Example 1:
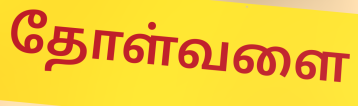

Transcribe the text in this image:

தோள்வளை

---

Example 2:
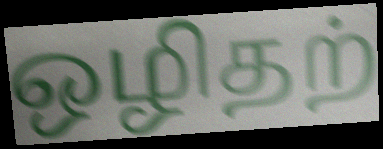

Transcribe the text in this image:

ஒழிதற்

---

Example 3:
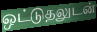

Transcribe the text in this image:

ஒட்டுதலுடன்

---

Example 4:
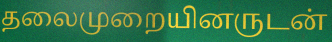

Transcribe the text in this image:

தலைமுறையினருடன்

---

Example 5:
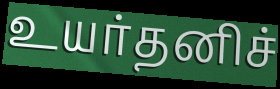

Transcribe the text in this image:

உயர்தனிச்